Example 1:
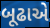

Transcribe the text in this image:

બૂઢાએ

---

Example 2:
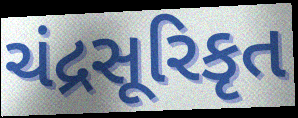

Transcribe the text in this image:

ચંદ્રસૂરિકૃત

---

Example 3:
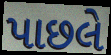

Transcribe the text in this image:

પાછલે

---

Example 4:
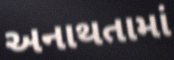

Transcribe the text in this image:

અનાથતામાં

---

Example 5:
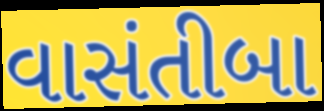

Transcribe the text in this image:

વાસંતીબા